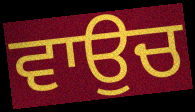
ਵਾਉਚ